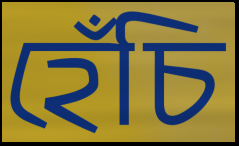
হেঁচি